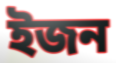
ইজন